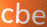
cbe